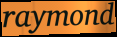
raymond